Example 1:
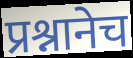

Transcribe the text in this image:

प्रश्नानेच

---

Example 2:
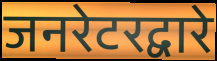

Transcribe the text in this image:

जनरेटरद्वारे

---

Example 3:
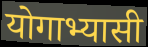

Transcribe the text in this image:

योगाभ्यासी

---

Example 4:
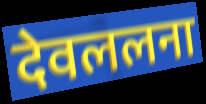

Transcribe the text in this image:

देवललना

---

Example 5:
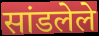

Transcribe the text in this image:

सांडलेले